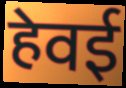
हेवई